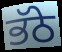
ਭੱਠੇ